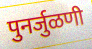
पुनर्जुळणी